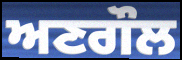
ਅਣਗੌਲ